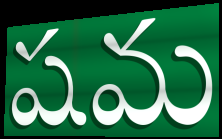
షమ